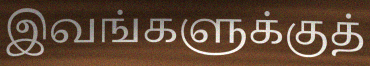
இவங்களுக்குத்